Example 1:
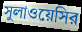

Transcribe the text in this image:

সুলাওয়েসির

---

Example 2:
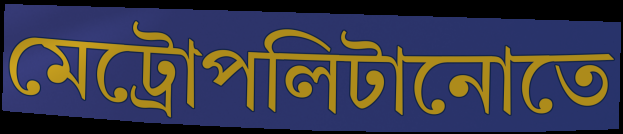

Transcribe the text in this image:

মেট্রোপলিটানোতে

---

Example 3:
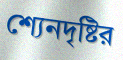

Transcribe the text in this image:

শ্যেনদৃষ্টির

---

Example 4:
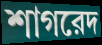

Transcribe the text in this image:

শাগরেদ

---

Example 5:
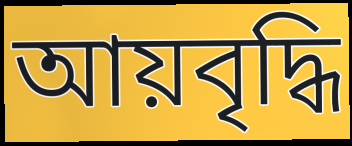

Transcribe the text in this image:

আয়বৃদ্ধি